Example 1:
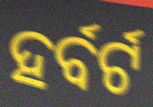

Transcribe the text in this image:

ହର୍ବର୍ଟ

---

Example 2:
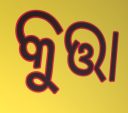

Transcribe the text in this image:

କୁତ୍ତା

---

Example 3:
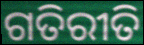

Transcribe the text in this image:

ଗତିରୀତି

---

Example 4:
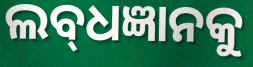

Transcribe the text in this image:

ଲବ୍‌ଧଜ୍ଞାନକୁ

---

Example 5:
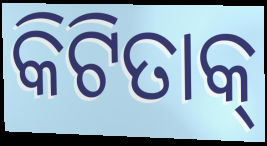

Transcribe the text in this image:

କିଟିତାକ୍